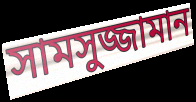
সামসুজ্জামান